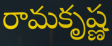
రామకృష్ణ